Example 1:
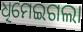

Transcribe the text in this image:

ଧିମେଇଗଲା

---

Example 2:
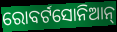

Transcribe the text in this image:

ରୋବର୍ଟସୋନିଆନ୍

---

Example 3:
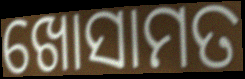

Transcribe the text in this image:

ଖୋସାମତ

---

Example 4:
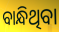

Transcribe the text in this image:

ବାନ୍ଧିଥିବା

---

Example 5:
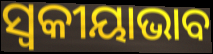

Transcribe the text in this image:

ସ୍ୱକୀୟାଭାବ